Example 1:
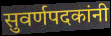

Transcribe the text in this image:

सुवर्णपदकांनी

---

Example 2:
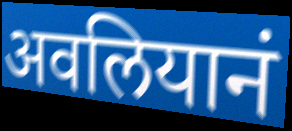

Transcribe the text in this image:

अवलियानं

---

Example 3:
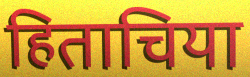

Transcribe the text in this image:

हिताचिया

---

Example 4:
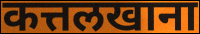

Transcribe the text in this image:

कत्तलखाना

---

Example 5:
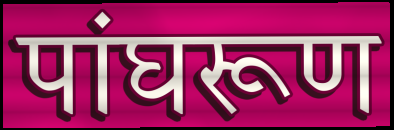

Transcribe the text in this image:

पांघरूण